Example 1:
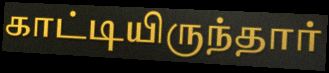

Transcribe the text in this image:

காட்டியிருந்தார்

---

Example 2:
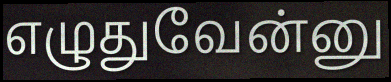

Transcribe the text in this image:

எழுதுவேன்னு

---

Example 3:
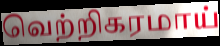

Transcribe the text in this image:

வெற்றிகரமாய்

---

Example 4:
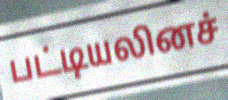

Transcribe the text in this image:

பட்டியலினச்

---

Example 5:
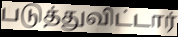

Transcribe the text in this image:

படுத்துவிட்டார்